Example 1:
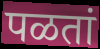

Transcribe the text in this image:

पळतां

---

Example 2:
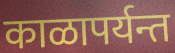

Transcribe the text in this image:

काळापर्यन्त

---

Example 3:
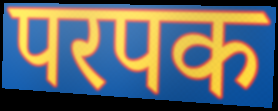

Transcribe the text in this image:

परपक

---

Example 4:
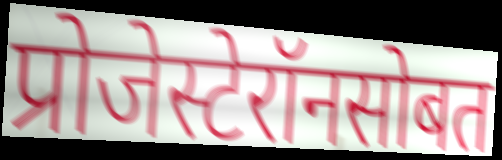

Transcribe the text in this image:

प्रोजेस्टेरॉनसोबत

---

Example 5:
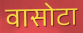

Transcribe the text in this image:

वासोटा